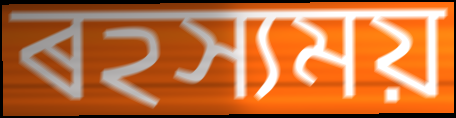
ৰহস্যময়